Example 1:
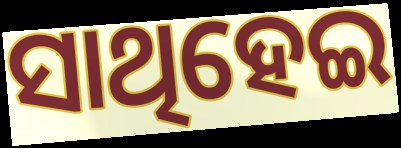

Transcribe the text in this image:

ସାଥିହେଇ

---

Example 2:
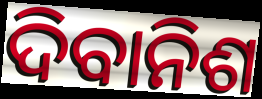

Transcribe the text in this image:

ଦିବାନିଶ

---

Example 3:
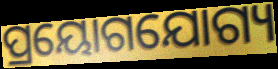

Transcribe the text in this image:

ପ୍ରୟୋଗଯୋଗ୍ୟ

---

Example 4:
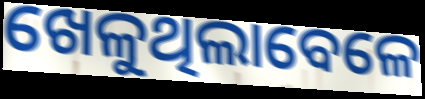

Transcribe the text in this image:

ଖେଳୁଥିଲାବେଳେ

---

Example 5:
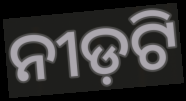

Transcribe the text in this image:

ନୀଡ଼ଟି